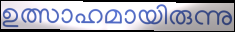
ഉത്സാഹമായിരുന്നു